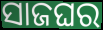
ସାଜଘର